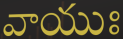
వాయుః